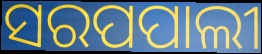
ସରପପାଲୀ